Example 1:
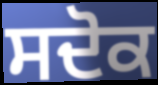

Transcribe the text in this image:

ਸਦੋਕ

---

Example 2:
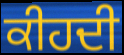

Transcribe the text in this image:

ਕੀਹਦੀ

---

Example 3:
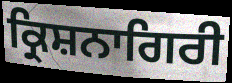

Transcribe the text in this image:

ਕ੍ਰਿਸ਼ਨਾਗਿਰੀ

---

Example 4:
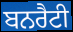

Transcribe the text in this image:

ਬਨਰੈਟੀ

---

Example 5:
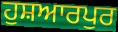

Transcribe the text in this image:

ਹੁਸ਼ਆਰਪੁਰ